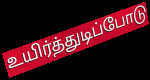
உயிர்த்துடிப்போடு